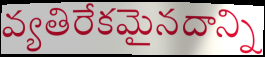
వ్యతిరేకమైనదాన్ని